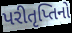
પરીતૃપ્તિનો